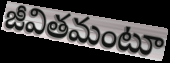
జీవితమంటూ